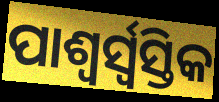
ପାଶ୍ୱର୍ସ୍ୱସ୍ତିକ